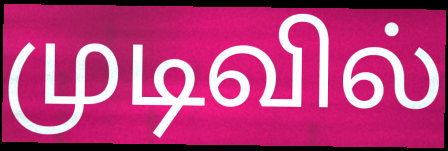
முடிவில்